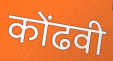
कोंढवी